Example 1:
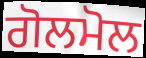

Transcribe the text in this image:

ਗੋਲਮੋਲ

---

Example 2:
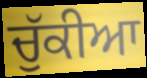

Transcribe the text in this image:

ਚੁੱਕੀਆ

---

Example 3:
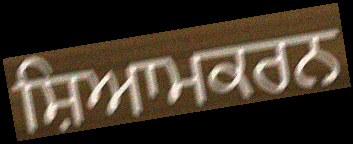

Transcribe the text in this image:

ਸ਼ਿਆਮਕਰਨ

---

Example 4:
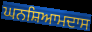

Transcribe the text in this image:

ਘਨਸ਼ਿਆਮਦਾਸ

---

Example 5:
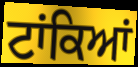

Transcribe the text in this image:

ਟਾਂਕਿਆਂ